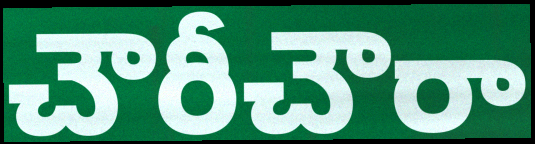
చౌరీచౌరా